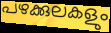
പഴക്കുലകളും